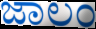
ಜಾಲಂ